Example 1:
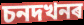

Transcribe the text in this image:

চনদখনৰ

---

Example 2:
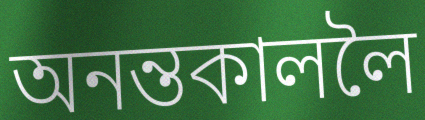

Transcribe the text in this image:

অনন্তকাললৈ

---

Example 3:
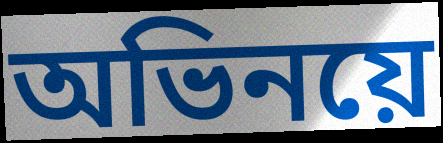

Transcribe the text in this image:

অভিনয়ে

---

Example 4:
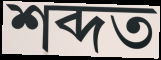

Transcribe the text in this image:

শব্দত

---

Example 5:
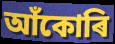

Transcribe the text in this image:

আঁকোৰি